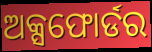
ଅକ୍ସଫୋର୍ଡର